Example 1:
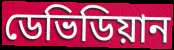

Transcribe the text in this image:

ডেভিডিয়ান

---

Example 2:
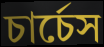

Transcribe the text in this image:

চার্চেস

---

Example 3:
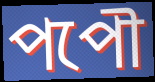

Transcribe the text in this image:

পপৌ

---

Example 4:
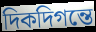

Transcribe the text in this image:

দিকদিগন্তে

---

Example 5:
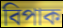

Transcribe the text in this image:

বিপাক